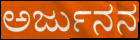
ಅರ್ಜುನನ